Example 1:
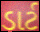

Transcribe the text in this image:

ડાર્ટ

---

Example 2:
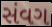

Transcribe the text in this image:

સંવગ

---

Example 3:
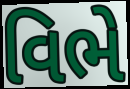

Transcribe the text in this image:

વિભે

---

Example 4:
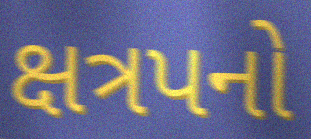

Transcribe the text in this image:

ક્ષત્રપનો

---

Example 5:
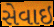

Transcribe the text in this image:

સેવાઇ